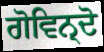
ਗੋਵਿਨ੍ਦੋ